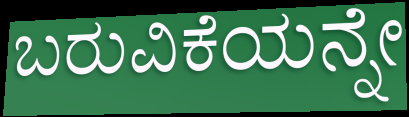
ಬರುವಿಕೆಯನ್ನೇ